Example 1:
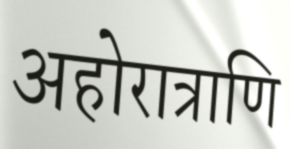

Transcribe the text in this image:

अहोरात्राणि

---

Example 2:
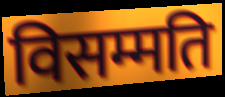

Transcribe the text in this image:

विसम्मति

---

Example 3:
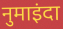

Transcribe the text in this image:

नुमाइंदा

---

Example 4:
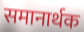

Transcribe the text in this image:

समानार्थक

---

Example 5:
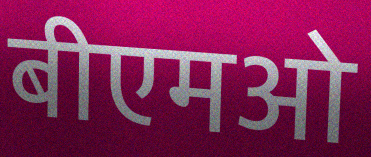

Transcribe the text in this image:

बीएमओ